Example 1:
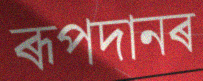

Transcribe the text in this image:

ৰূপদানৰ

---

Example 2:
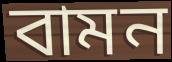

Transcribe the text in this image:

বামন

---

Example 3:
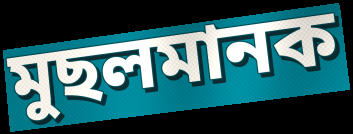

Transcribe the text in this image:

মুছলমানক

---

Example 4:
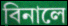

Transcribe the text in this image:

বিনালে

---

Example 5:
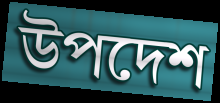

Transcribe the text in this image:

উপদেশ